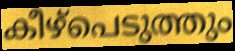
കീഴ്പെടുത്തും